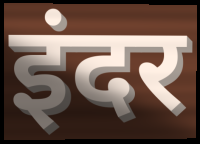
इंदर